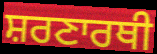
ਸ਼ਰਣਾਰਥੀ